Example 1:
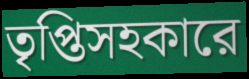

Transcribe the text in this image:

তৃপ্তিসহকারে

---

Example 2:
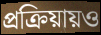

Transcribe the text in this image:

প্রক্রিয়ায়ও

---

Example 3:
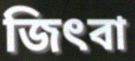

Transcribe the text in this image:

জিৎবা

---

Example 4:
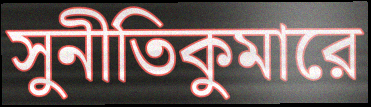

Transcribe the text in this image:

সুনীতিকুমারে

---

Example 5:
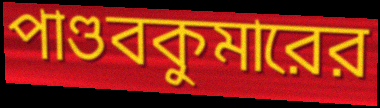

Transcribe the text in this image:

পাণ্ডবকুমারের